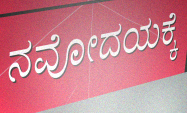
ನವೋದಯಕ್ಕೆ